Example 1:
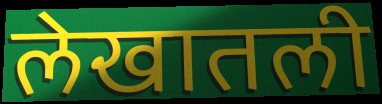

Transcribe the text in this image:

लेखातली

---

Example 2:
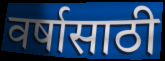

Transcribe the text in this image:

वर्षासाठी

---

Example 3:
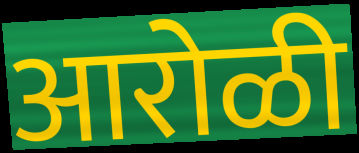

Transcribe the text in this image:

आरोळी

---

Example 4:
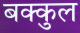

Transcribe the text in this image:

बक्कुल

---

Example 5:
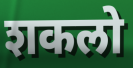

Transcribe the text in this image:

शकलो